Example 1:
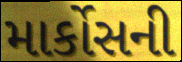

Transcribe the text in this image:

માર્કોસની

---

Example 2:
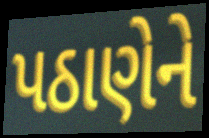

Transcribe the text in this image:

પઠાણેને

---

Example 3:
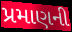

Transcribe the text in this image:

પ્રમાણની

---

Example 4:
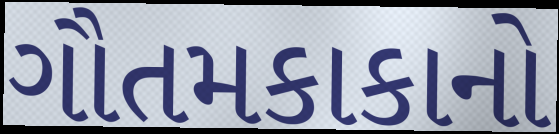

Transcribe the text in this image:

ગૌતમકાકાનો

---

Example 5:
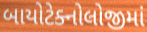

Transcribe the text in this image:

બાયોટેક્નોલોજીમાં